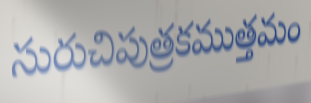
సురుచిపుత్రకముత్తమం